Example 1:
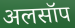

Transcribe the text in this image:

अलसॉप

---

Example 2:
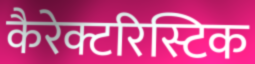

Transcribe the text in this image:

कैरेक्टरिस्टिक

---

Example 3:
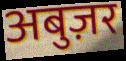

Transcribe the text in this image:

अबुज़र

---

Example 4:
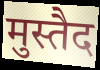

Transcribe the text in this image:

मुस्‍तैद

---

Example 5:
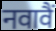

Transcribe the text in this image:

नवावैं